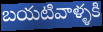
బయటివాళ్ళకి